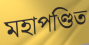
মহাপণ্ডিত